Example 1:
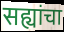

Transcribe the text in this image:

सह्यांचा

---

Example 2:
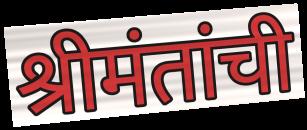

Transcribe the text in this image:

श्रीमंतांची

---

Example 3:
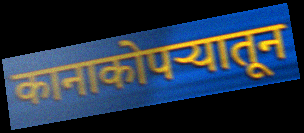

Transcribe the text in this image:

कानाकोपर्‍यातून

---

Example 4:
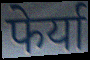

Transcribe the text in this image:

फेर्या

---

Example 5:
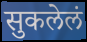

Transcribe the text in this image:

सुकलेलं